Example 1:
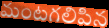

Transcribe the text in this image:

మంటగలిపిన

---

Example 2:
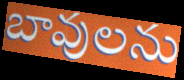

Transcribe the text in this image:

బావులను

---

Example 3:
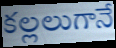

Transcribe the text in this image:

కల్లలుగానే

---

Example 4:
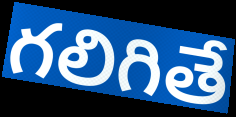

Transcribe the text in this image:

గలిగితే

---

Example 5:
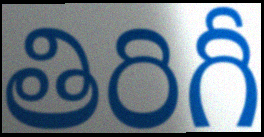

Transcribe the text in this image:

తిరిగీ